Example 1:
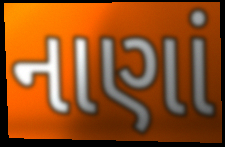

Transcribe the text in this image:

નાણાં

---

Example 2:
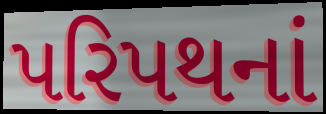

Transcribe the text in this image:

પરિપથનાં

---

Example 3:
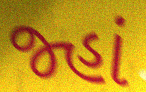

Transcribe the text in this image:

જ્હાં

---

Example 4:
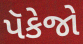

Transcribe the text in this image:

પૅકેજો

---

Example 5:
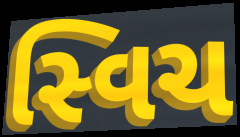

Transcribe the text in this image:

સ્વિચ